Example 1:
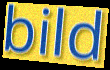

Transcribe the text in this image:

bild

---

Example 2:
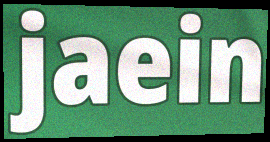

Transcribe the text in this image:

jaein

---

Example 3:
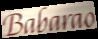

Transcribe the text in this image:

Babarao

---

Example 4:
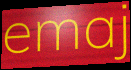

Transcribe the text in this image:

emaj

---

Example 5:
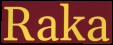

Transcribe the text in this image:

Raka